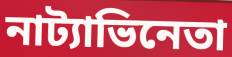
নাট্যাভিনেতা